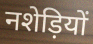
नशेड़ियों